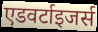
एडवर्टाइजर्स